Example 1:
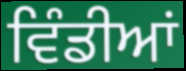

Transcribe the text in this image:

ਵਿੰਡੀਆਂ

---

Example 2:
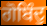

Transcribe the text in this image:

ਗੋਬਿੰਦੁ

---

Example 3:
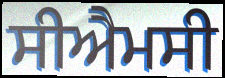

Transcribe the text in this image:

ਸੀਐਮਸੀ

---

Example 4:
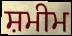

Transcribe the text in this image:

ਸ਼ਮੀਮ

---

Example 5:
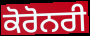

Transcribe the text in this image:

ਕੋਰੋਨਰੀ